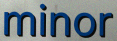
minor